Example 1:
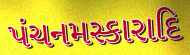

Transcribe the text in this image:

પંચનમસ્કારાદિ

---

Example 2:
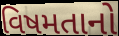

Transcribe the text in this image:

વિષમતાનો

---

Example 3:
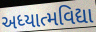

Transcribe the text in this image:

અધ્યાત્મવિદ્યા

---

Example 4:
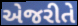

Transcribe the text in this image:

એજરીતે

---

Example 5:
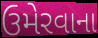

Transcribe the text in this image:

ઉમેરવાના